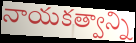
నాయకత్వాన్ని